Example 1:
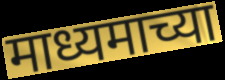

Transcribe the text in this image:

माध्यमाच्या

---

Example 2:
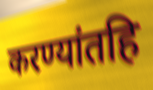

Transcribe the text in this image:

करण्यांतहि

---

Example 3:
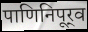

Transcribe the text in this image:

पाणिनिपूर्व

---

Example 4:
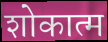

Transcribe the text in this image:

शोकात्म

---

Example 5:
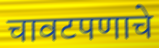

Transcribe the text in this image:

चावटपणाचे